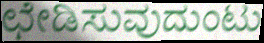
ಛೇಡಿಸುವುದುಂಟು